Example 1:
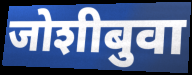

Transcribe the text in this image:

जोशीबुवा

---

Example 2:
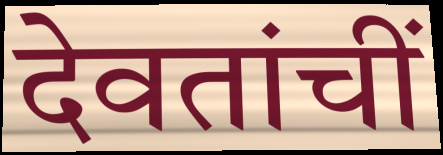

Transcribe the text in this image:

देवतांचीं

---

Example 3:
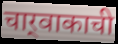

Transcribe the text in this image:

चार्वाकाची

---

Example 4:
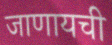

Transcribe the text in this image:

जाणायची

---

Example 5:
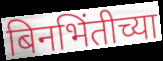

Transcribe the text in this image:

बिनभिंतीच्या